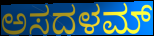
ಅಸದಳಮ್